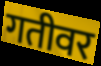
गतीवर